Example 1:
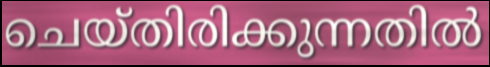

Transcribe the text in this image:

ചെയ്തിരിക്കുന്നതിൽ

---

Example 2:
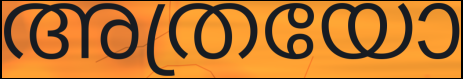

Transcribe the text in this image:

അത്രയോ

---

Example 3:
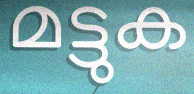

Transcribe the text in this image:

മട്ടുക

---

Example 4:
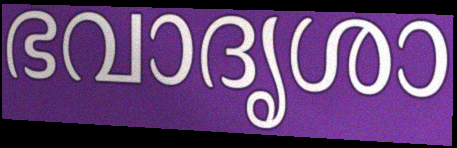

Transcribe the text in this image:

ഭവാദൃശാ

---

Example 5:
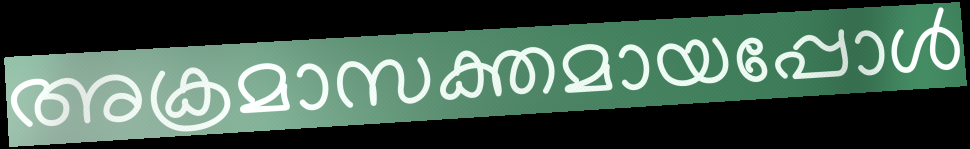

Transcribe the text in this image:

അക്രമാസക്തമായപ്പോൾ